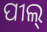
ପୀଲ୍